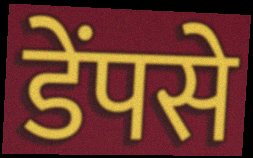
डेंपसे